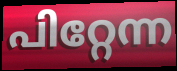
പിറ്റേന്ന